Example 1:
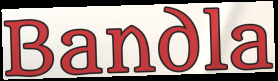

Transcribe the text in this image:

Bandla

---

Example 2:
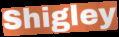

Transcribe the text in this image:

Shigley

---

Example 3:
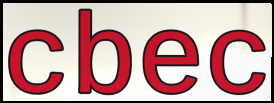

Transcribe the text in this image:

cbec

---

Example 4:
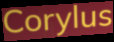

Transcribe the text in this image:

Corylus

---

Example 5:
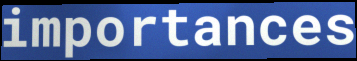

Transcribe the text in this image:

importances